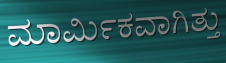
ಮಾರ್ಮಿಕವಾಗಿತ್ತು